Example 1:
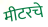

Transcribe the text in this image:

मीटरचे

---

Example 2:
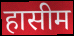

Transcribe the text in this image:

हासीम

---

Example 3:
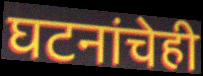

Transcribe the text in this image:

घटनांचेही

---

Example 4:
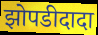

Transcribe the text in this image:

झोपडीदादा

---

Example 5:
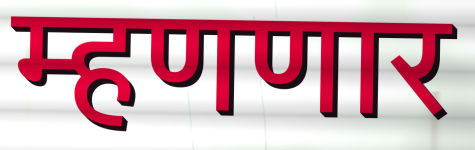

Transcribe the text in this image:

म्हणणार